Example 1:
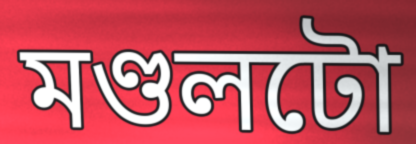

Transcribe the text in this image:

মণ্ডলটো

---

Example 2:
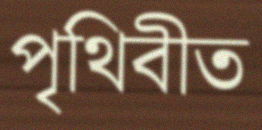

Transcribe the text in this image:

পৃথিবীত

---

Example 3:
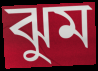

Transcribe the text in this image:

ঝুম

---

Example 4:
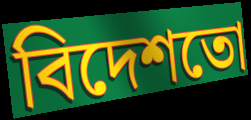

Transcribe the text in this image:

বিদেশতো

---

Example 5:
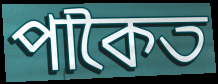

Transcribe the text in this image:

পাকৈত